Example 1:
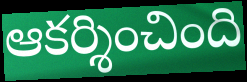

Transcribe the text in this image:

ఆకర్శించింది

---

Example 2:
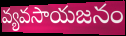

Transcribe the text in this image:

వ్యవసాయజనం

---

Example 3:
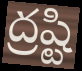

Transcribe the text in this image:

ద్రష్టి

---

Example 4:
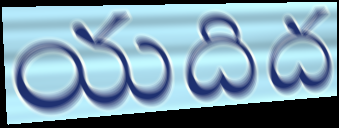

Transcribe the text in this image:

యదిద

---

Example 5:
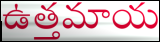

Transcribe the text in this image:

ఉత్తమాయ